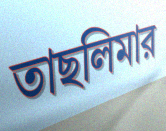
তাছলিমার